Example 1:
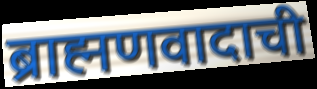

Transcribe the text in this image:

ब्राह्मणवादाची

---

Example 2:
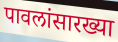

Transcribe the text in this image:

पावलांसारख्या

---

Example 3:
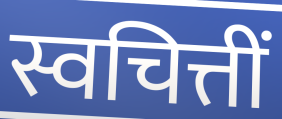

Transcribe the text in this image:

स्वचित्तीं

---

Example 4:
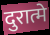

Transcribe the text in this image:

दुरात्मे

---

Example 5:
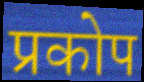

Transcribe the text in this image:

प्रकोप